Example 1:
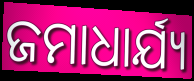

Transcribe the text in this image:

ଜମାଧାର୍ଯ୍ୟ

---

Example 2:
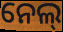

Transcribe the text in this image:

ନେଲ୍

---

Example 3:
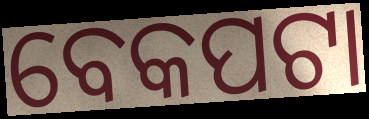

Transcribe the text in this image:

ବେକପଟା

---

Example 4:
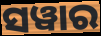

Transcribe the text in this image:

ସୱାର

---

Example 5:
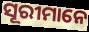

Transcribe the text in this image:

ସୂରୀମାନେ